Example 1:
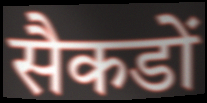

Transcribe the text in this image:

सैकडों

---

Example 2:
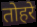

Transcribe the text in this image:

तोहरे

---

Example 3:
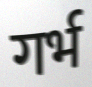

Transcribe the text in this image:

गर्भ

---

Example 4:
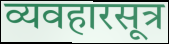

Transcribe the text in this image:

व्यवहारसूत्र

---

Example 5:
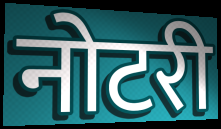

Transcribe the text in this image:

नोटरी